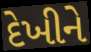
દેખીને